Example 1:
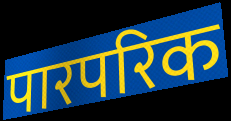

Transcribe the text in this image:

पारपरिक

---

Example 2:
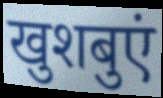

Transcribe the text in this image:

खुशबुएं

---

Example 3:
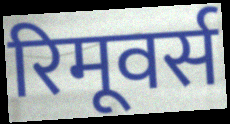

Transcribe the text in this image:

रिमूवर्स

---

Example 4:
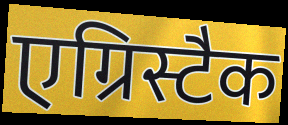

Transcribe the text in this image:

एग्रिस्टैक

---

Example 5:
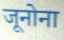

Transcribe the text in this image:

जूनोना